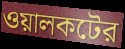
ওয়ালকটের